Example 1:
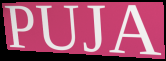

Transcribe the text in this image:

PUJA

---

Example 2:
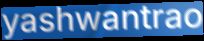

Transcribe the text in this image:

yashwantrao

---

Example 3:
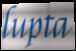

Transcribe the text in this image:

lupta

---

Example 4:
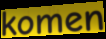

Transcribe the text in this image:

komen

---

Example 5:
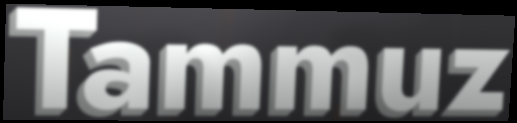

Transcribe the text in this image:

Tammuz